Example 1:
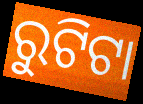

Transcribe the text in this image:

ରୁଟିଟା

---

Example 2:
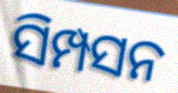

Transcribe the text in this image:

ସିମ୍ପସନ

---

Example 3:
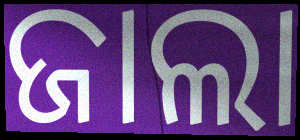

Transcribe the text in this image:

ଜାଲା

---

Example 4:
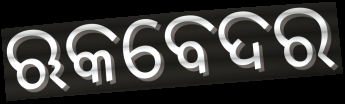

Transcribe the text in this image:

ଋକବେଦର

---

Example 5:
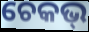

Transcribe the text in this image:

ଚେକଭ୍